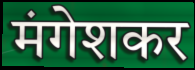
मंगेशकर